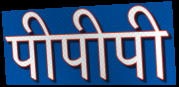
पीपीपी